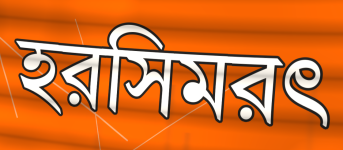
হরসিমরৎ